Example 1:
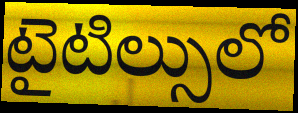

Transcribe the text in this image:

టైటిల్సులో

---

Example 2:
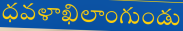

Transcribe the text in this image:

ధవళాఖిలాంగుండు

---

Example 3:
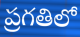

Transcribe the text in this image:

ప్రగతిలో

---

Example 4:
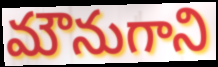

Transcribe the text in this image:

మౌనుగాని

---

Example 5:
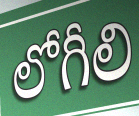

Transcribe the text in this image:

లోగీలి